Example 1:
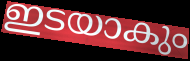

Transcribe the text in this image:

ഇടയാകും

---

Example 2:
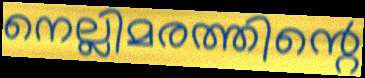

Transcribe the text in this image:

നെല്ലിമരത്തിന്റെ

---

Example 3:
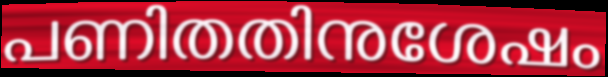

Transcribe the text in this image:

പണിതതിനുശേഷം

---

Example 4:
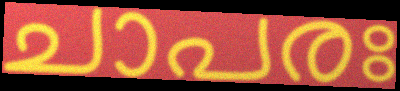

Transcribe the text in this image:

ചാപരഃ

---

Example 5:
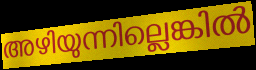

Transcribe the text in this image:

അഴിയുന്നില്ലെങ്കിൽ